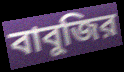
বাবুজির